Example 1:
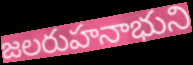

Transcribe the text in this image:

జలరుహనాభుని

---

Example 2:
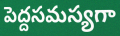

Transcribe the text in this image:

పెద్దసమస్యగా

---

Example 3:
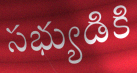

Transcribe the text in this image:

సభ్యుడికి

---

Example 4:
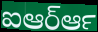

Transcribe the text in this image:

ఐఆర్ఆర్‍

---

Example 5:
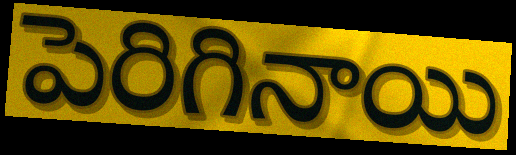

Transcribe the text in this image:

పెరిగినాయి